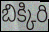
బిక్కిరి